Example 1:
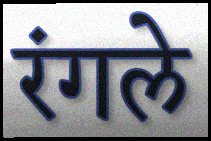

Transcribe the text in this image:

रंगले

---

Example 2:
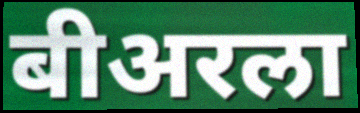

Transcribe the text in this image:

बीअरला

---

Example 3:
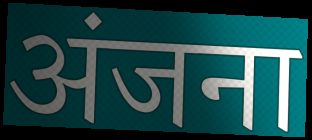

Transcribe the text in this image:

अंजना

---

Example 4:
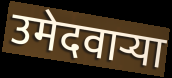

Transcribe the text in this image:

उमेदवार्‍या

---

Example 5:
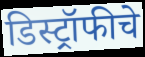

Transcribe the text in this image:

डिस्ट्रॉफीचे